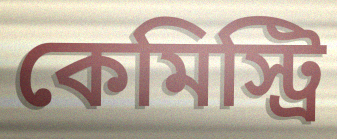
কেমিস্ট্রি